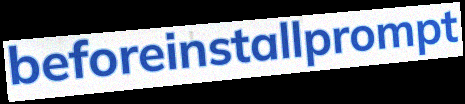
beforeinstallprompt